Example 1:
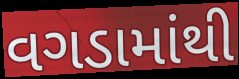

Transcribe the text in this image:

વગડામાંથી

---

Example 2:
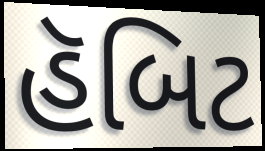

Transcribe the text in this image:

હૅબિટ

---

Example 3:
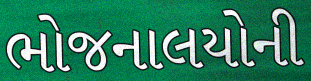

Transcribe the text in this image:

ભોજનાલયોની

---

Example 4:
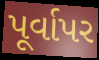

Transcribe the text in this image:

પૂર્વાપર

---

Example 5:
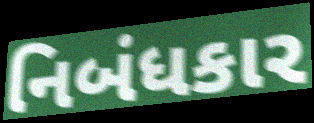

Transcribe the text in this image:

નિબંધકાર